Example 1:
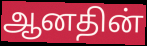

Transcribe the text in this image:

ஆனதின்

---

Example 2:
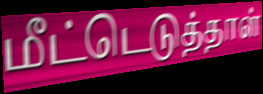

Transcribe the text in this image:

மீட்டெடுத்தாள்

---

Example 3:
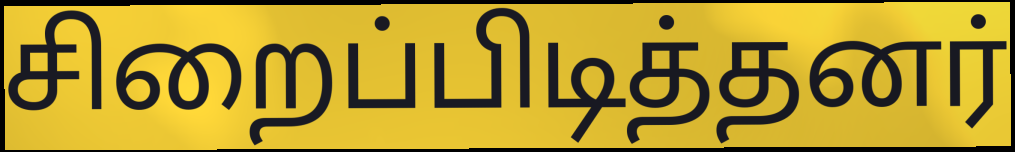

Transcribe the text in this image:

சிறைப்பிடித்தனர்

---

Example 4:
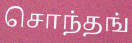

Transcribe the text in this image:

சொந்தங்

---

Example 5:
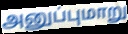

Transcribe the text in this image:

அனுப்புமாறு